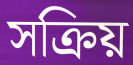
সক্ৰিয়